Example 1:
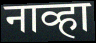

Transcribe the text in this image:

नाव्हा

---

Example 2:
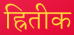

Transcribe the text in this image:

ह्रितीक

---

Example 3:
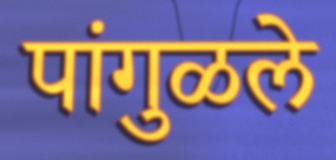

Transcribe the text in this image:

पांगुळले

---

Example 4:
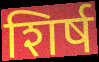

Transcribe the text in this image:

शिर्ष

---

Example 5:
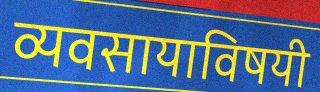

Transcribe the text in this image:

व्यवसायाविषयी